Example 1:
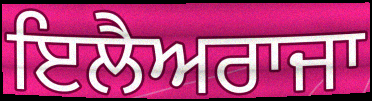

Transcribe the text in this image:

ਇਲੈਅਰਾਜਾ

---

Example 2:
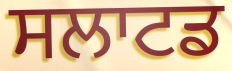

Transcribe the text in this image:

ਸਲਾਟਡ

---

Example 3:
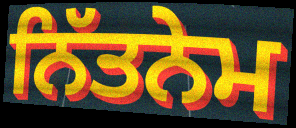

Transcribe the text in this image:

ਨਿੱਤਨੇਮ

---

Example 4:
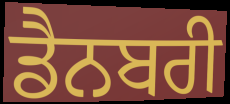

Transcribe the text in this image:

ਡੈਨਬਰੀ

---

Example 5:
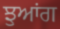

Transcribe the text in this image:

ਝੁਆਂਗ